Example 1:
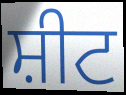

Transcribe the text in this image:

ਸ਼ੀਟ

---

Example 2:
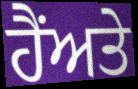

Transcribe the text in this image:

ਹੈਂਅਤੇ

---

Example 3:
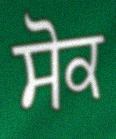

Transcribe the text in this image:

ਸੋਕ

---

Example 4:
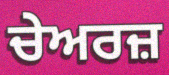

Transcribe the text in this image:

ਚੇਅਰਜ਼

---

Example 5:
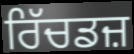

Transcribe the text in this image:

ਰਿੱਚਡਜ਼